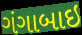
ગંગાબાઇ